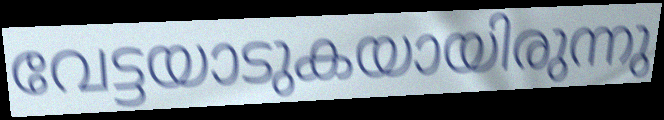
വേട്ടയാടുകയായിരുന്നു